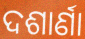
ଦଶାର୍ଣା